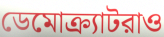
ডেমোক্র্যাটরাও